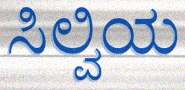
ಸಿಲ್ವಿಯ